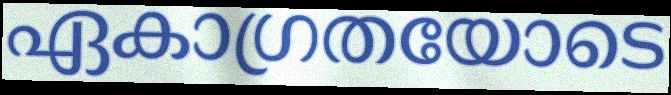
ഏകാഗ്രതയോടെ